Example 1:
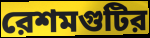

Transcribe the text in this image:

রেশমগুটির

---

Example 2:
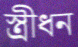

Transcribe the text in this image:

স্ত্রীধন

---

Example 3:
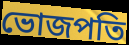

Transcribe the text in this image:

ভোজপতি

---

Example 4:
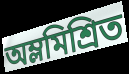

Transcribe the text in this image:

অম্লমিশ্রিত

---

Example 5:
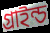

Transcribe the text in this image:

গ্রাইন্ড